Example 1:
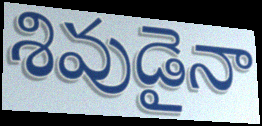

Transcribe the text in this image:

శివుడైనా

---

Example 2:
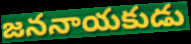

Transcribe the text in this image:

జననాయకుడు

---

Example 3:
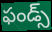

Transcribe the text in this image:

ఫండ్స్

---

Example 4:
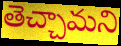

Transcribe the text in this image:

తెచ్చామని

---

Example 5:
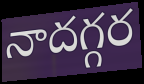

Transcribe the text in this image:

నాదగ్గర